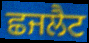
ਛਜਲੈਟ